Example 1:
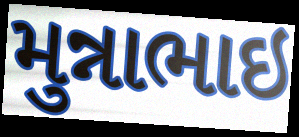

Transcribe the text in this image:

મુન્નાભાઇ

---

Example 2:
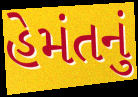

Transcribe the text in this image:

હેમંતનું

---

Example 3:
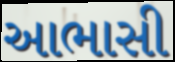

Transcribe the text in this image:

આભાસી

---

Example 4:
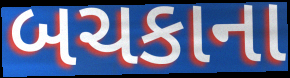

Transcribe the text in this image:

બચકાના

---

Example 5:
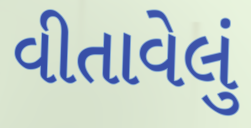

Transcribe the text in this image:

વીતાવેલું